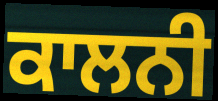
ਕਾਲਨੀ